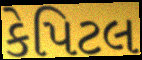
કેપિટલ